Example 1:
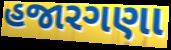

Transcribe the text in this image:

હજારગણા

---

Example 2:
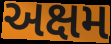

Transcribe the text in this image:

અક્ષમ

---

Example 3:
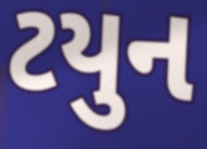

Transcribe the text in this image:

ટયુન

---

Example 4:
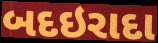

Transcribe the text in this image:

બદઇરાદા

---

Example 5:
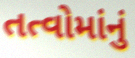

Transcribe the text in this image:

તત્વોમાંનું